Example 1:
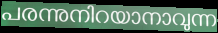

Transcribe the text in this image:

പരന്നുനിറയാനാവുന്ന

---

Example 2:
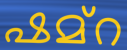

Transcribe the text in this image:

ഷമ്റ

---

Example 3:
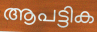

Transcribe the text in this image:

ആപട്ടിക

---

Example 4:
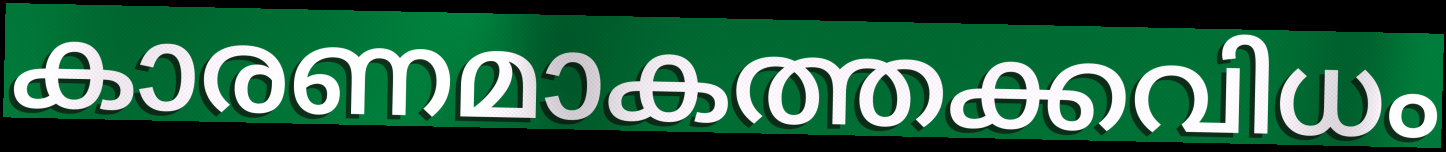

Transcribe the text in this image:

കാരണമാകത്തക്കവിധം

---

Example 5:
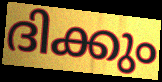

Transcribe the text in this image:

ദിക്കും